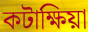
কটাক্ষিয়া